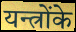
यन्त्रोंके